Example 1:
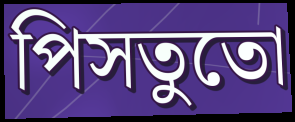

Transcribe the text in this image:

পিসতুতো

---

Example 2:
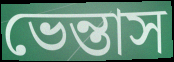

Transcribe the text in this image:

ভেন্তাস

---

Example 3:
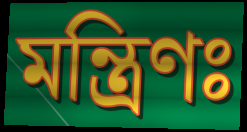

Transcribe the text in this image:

মন্ত্রিণঃ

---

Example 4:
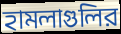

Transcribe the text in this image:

হামলাগুলির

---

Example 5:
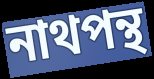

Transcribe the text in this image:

নাথপন্থ